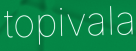
topivala